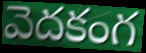
వెదకంగ